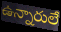
ఉన్నారులే